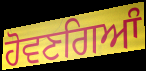
ਹੋਵਣਗਿਆੰ